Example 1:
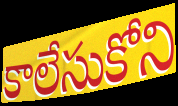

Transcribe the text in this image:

కాలేసుకోని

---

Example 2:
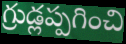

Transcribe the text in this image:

గ్రుడ్లప్పగించి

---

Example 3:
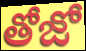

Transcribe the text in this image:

తోజో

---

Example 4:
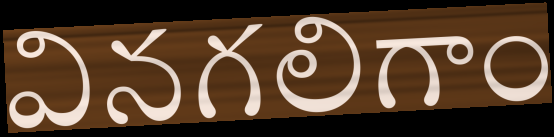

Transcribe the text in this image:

వినగలిగాం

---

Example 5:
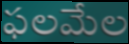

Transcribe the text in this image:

ఫలమేల